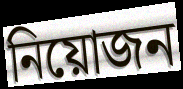
নিয়োজন